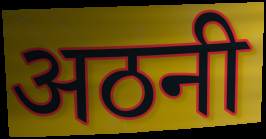
अठनी